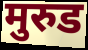
मुरुड